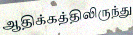
ஆதிக்கத்திலிருந்து